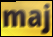
maj